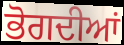
ਭੋਗਦੀਆਂ